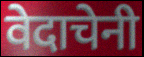
वेदाचेनी